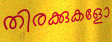
തിരക്കുകളോ